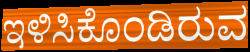
ಇಳಿಸಿಕೊಂಡಿರುವ